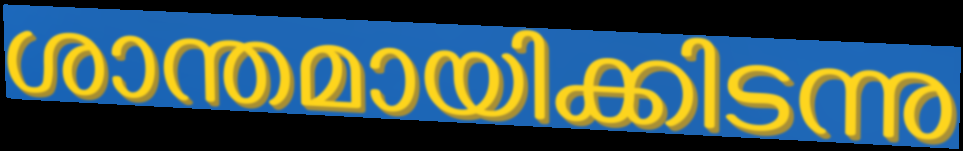
ശാന്തമായിക്കിടന്നു